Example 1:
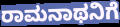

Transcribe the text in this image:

ರಾಮನಾಥನಿಗೆ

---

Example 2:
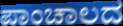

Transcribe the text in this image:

ಪಾಂಚಾಲದ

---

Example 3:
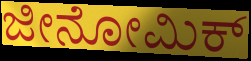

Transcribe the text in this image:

ಜೀನೋಮಿಕ್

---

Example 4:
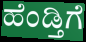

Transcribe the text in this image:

ಹೆಂಡ್ತಿಗೆ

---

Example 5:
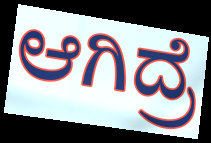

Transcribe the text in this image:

ಆಗಿದ್ರೆ